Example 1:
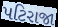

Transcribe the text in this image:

પટિરાજા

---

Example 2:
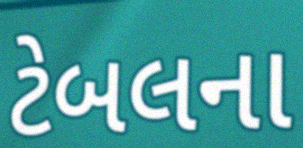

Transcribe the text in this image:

ટેબલના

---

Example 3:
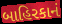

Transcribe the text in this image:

બાહિરકાનં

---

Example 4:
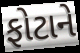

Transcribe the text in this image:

ફોટાને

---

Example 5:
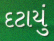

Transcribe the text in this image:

દટાયું